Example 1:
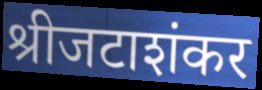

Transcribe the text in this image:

श्रीजटाशंकर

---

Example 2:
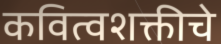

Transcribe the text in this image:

कवित्वशक्तीचे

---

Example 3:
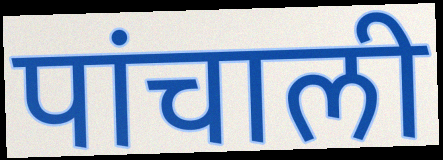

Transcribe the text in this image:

पांचाली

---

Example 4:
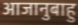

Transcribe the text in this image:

आजानुबाहु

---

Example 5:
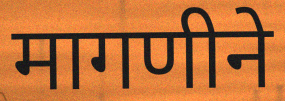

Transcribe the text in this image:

मागणीने